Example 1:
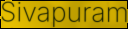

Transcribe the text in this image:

Sivapuram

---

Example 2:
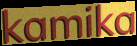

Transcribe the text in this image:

kamika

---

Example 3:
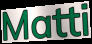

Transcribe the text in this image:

Matti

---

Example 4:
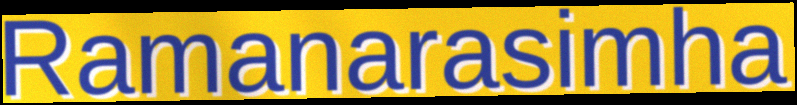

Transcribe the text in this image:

Ramanarasimha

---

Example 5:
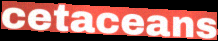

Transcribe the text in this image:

cetaceans